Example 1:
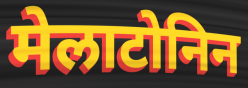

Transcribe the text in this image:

मेलाटोनिन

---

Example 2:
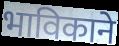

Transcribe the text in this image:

भाविकाने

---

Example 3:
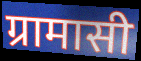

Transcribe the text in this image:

ग्रामासी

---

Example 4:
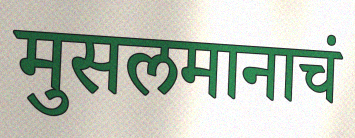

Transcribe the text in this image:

मुसलमानाचं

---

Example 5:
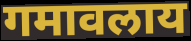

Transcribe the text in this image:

गमावलाय